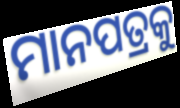
ମାନପତ୍ରକୁ